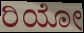
ರಿಯೋ